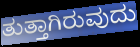
ತುತ್ತಾಗಿರುವುದು